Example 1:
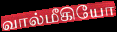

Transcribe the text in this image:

வால்மீகியோ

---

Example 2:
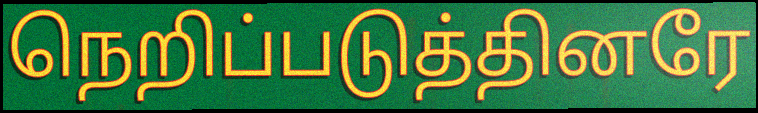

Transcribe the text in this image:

நெறிப்படுத்தினரே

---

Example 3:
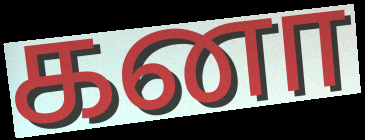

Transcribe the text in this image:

கனா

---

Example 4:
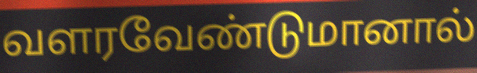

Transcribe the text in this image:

வளரவேண்டுமானால்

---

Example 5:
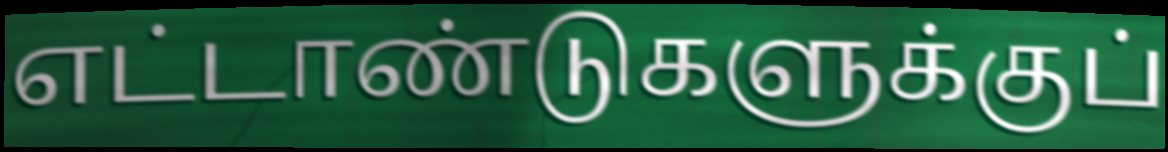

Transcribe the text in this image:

எட்டாண்டுகளுக்குப்